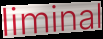
liminal